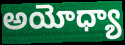
అయోధ్యా